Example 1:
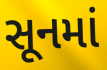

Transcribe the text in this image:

સૂનમાં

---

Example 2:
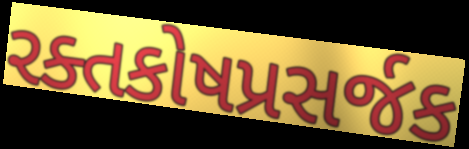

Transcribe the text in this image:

રક્તકોષપ્રસર્જક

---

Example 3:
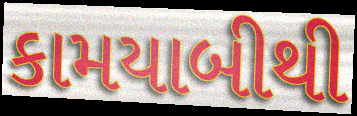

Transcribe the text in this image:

કામયાબીથી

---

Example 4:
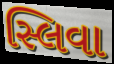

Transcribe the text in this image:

સ્લિવા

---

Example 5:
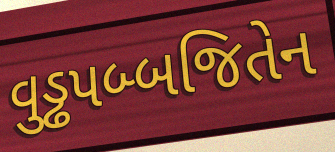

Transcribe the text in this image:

વુડ્ઢપબ્બજિતેન